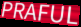
PRAFUL